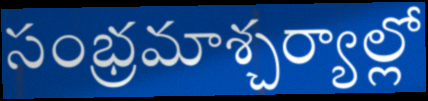
సంభ్రమాశ్చర్యాల్లో